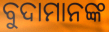
ବୁଦାମାନଙ୍କ